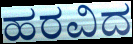
ಹರವಿದ